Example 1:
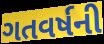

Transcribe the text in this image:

ગતવર્ષની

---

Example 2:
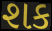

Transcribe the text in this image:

શક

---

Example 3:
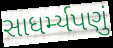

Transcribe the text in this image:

સાધર્મ્યપણું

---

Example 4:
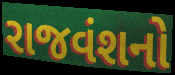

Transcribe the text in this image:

રાજવંશનો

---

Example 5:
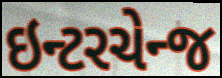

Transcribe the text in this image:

ઇન્ટરચેન્જ